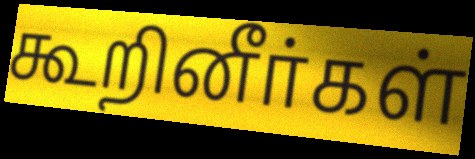
கூறினீர்கள்